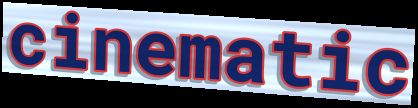
cinematic